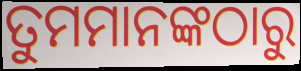
ତୁମମାନଙ୍କଠାରୁ